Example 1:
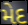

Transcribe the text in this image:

મેદ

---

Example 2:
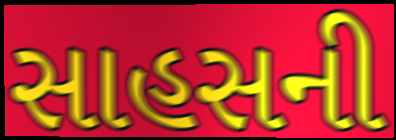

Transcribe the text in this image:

સાહસની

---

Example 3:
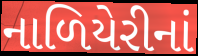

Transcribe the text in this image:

નાળિયેરીનાં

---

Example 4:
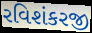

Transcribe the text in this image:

રવિશંકરજી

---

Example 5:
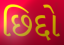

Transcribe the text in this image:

છિદ્દો